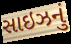
સાઇઝનું